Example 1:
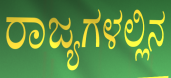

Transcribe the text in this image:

ರಾಜ್ಯಗಳಲ್ಲಿನ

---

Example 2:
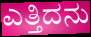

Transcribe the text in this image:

ಎತ್ತಿದನು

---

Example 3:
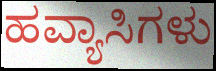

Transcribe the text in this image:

ಹವ್ಯಾಸಿಗಳು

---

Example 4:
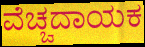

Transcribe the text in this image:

ವೆಚ್ಚದಾಯಕ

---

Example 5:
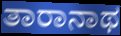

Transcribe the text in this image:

ತಾರಾನಾಥ